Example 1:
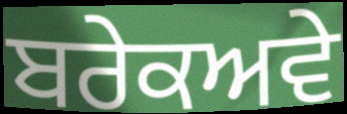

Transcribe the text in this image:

ਬਰੇਕਅਵੇ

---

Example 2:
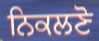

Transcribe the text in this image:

ਨਿਕਲਣੋ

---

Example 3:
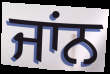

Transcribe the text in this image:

ਜਾਂਨ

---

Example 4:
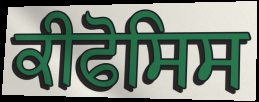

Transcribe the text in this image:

ਕੀਫੋਸਿਸ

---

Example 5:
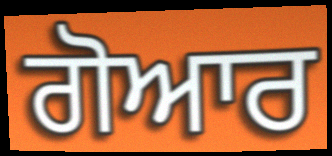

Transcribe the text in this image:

ਗੋਆਰ